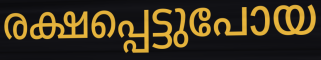
രക്ഷപ്പെട്ടുപോയ